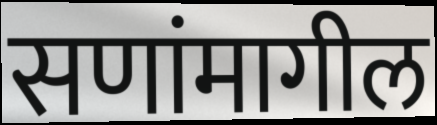
सणांमागील